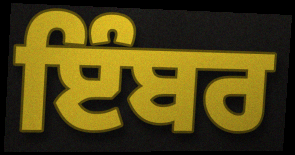
ਇੰਬਰ